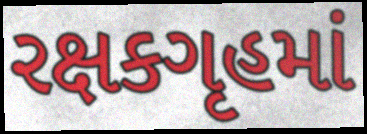
રક્ષકગૃહમાં